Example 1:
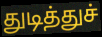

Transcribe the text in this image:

துடித்துச்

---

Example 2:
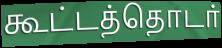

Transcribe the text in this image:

கூட்டத்தொடர்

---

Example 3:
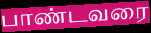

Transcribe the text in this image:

பாண்டவரை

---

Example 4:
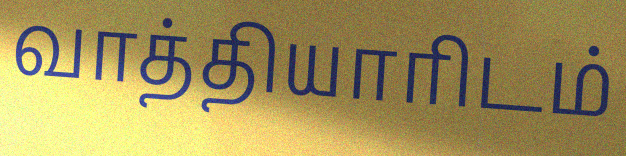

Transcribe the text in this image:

வாத்தியாரிடம்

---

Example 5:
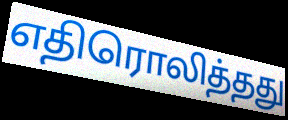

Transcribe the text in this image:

எதிரொலித்தது